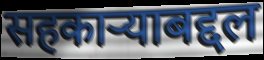
सहकाऱ्याबद्दल